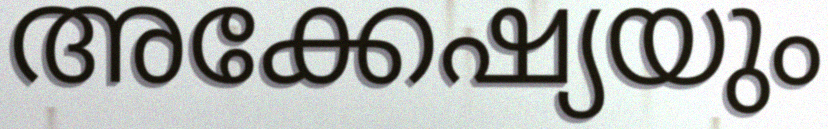
അക്കേഷ്യയും